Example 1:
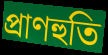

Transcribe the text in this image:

প্ৰাণহুতি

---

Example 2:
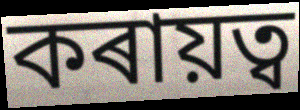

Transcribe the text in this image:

কৰায়ত্ব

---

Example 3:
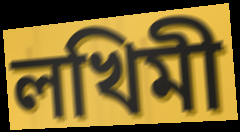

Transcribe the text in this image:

লখিমী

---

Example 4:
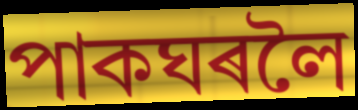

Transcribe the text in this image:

পাকঘৰলৈ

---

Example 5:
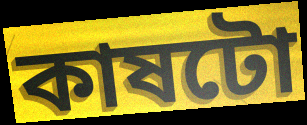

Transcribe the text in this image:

কাষটো